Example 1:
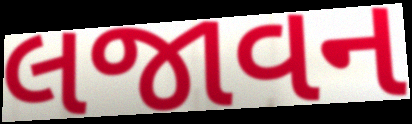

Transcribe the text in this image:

લજાવન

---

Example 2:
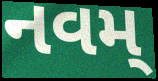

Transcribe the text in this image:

નવમ્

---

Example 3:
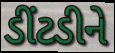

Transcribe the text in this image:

ડીંટડીને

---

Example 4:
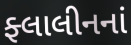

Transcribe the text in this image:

ફ્લાલીનનાં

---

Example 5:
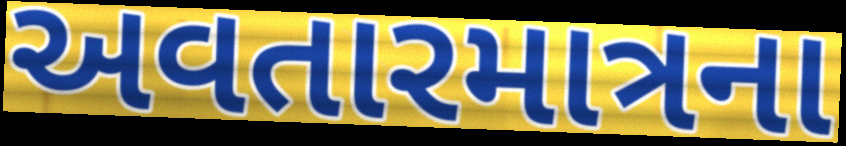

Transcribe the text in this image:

અવતારમાત્રના